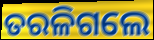
ତରଳିଗଲେ